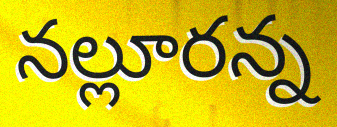
నల్లూరన్న